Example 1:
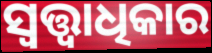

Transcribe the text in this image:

ସ୍ୱତ୍ତ୍ୱାଧିକାର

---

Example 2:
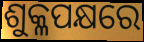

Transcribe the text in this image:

ଶୁକ୍ଳପକ୍ଷରେ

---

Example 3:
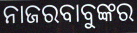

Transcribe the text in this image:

ନାଜରବାବୁଙ୍କର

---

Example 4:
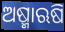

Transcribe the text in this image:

ଅଷ୍ମାଋଷି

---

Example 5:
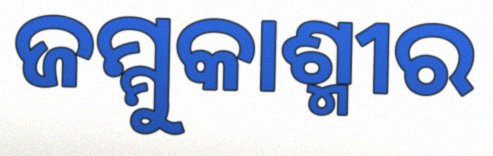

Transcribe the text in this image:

ଜମ୍ମୁକାଶ୍ମୀର